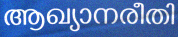
ആഖ്യാനരീതി